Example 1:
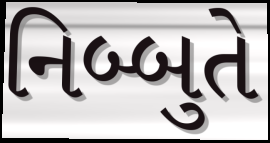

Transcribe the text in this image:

નિબ્બુતે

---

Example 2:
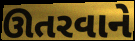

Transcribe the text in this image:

ઊતરવાને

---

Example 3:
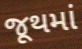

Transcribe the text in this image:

જૂથમાં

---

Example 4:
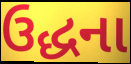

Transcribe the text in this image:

ઉદ્ધના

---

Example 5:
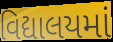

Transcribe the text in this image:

વિદ્યાલયમાં